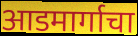
आडमार्गाचा